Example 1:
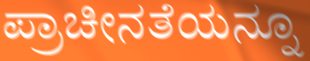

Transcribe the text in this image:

ಪ್ರಾಚೀನತೆಯನ್ನೂ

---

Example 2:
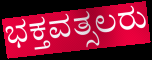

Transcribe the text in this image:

ಭಕ್ತವತ್ಸಲರು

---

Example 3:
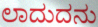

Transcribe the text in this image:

ಲಾದುದನು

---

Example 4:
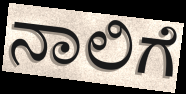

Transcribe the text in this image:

ನಾಲಿಗೆ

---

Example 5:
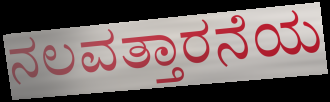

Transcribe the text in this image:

ನಲವತ್ತಾರನೆಯ